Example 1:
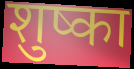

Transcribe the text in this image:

शुष्का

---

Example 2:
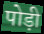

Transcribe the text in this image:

पोड़ी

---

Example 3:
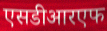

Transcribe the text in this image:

एसडीआरएफ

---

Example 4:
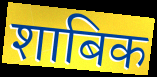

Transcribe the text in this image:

शाबिक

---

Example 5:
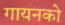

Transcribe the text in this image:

गायनको